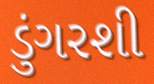
ડુંગરશી